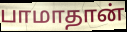
பாமாதான்